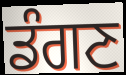
ਡੰਗਣ